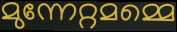
മുന്നേറ്റമമ്മെ